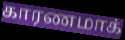
காரணமாக்